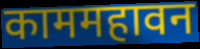
काममहावन